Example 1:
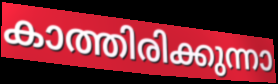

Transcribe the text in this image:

കാത്തിരിക്കുന്നാ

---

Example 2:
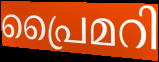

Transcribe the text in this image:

പ്രൈമറി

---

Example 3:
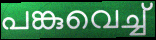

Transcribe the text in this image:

പങ്കുവെച്ച്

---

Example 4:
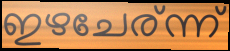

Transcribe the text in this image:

ഇഴചേര്ന്ന്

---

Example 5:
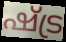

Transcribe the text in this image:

ഷ്ട്ര